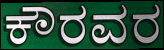
ಕೌರವರ